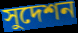
সুদেশন